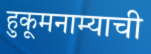
हुकूमनाम्याची